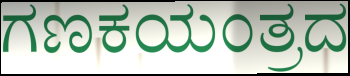
ಗಣಕಯಂತ್ರದ